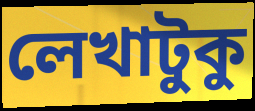
লেখাটুকু